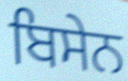
ਬਿਸੇਨ